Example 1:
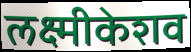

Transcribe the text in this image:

लक्ष्मीकेशव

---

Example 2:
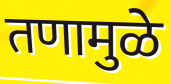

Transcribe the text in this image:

तणामुळे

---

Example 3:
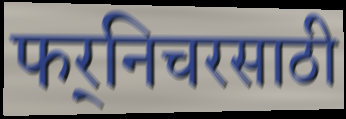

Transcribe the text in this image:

फर्निचरसाठी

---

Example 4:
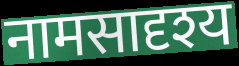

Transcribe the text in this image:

नामसादृश्य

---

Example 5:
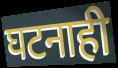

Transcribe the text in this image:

घटनाही